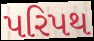
પરિપથ